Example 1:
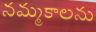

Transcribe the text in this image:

నమ్మకాలను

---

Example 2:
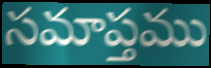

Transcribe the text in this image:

సమాప్తము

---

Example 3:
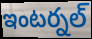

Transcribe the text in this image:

ఇంటర్నల్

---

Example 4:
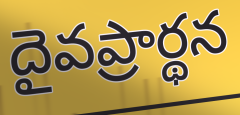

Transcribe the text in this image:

దైవప్రార్థన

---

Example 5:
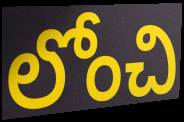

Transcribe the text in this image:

లోంచి